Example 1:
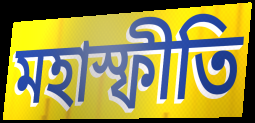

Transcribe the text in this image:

মহাস্ফীতি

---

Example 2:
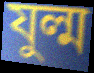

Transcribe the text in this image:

যুল্ম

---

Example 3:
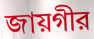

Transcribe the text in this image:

জায়গীর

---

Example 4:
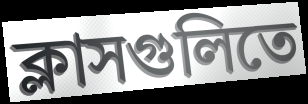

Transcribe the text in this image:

ক্লাসগুলিতে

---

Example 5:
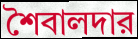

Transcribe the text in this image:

শৈবালদার